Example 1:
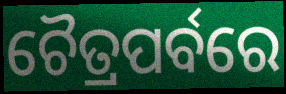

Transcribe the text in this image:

ଚୈତ୍ରପର୍ବରେ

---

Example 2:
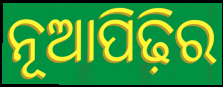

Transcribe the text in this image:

ନୂଆପିଢ଼ିର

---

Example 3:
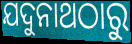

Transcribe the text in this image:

ଯଦୁନାଥଠାରୁ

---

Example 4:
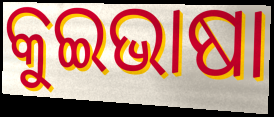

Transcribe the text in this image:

କୁଇଭାଷା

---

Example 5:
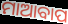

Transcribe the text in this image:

ମାଆବାପ